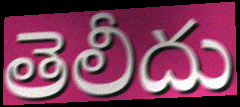
తెలీదు